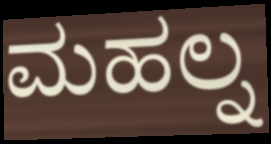
ಮಹಲ್ನ